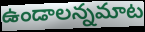
ఉండాలన్నమాట